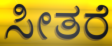
ಸೀತರೆ